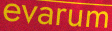
evarum